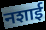
नशाई